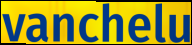
vanchelu